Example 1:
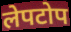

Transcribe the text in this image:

लेपटोप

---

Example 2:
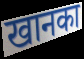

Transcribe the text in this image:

खानका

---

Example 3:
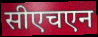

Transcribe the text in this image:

सीएचएन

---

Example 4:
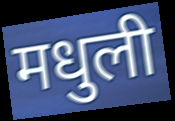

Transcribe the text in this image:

मधुली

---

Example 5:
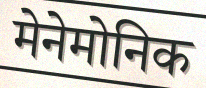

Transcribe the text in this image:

मेनेमोनिक